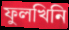
ফুলখিনি